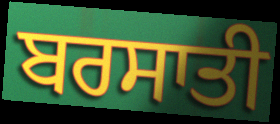
ਬਰਸਾਤੀ